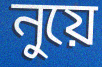
নুয়ে